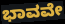
ಭಾವವೇ